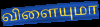
விளையுமா